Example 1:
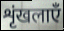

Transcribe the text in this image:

शृंखलाएँ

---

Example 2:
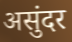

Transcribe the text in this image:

असुंदर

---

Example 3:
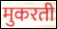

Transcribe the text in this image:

मुकरती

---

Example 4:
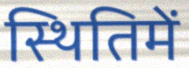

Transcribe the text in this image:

स्थितिमें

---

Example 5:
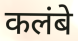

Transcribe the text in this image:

कलंबे